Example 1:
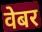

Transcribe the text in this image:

वेबर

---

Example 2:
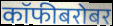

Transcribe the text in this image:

कॉफीबरोबर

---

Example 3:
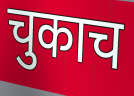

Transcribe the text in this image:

चुकाच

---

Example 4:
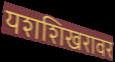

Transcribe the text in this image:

यशशिखरावर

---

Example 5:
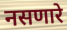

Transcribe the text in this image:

नसणारे